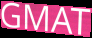
GMAT